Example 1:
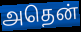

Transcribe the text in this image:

அதென்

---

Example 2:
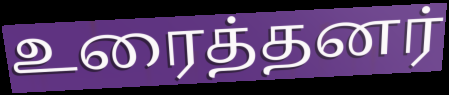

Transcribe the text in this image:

உரைத்தனர்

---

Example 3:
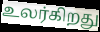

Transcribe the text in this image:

உலர்கிறது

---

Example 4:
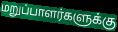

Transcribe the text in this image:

மறுப்பாளர்களுக்கு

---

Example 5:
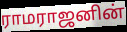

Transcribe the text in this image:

ராமராஜனின்